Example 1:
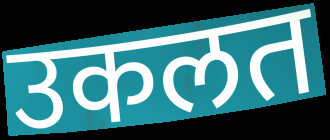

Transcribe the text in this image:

उकलत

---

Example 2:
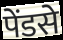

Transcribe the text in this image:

पेंडसे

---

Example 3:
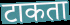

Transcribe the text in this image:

टाकता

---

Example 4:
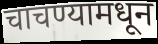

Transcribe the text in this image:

चाचण्यामधून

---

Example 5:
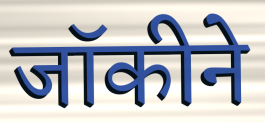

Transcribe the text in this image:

जॉकीने